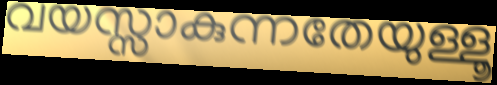
വയസ്സാകുന്നതേയുള്ളൂ